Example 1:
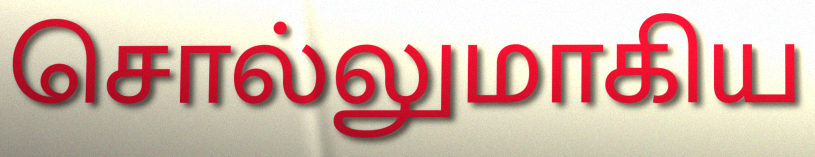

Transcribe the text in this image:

சொல்லுமாகிய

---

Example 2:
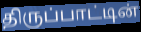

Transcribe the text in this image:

திருப்பாட்டின்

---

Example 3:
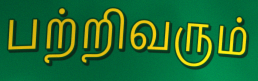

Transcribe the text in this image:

பற்றிவரும்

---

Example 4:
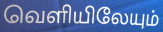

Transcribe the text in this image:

வெளியிலேயும்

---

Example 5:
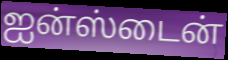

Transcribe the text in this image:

ஐன்ஸ்டைன்